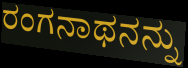
ರಂಗನಾಥನನ್ನು